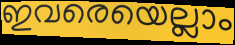
ഇവരെയെല്ലാം